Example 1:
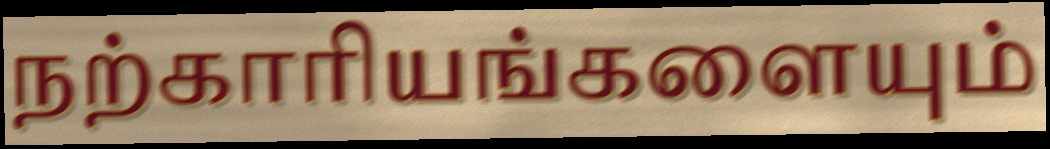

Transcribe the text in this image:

நற்காரியங்களையும்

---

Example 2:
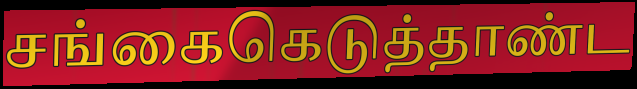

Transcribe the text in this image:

சங்கைகெடுத்தாண்ட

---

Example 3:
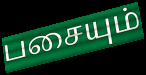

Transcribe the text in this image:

பசையும்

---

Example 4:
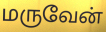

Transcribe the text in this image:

மருவேன்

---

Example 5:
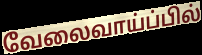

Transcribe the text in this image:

வேலைவாய்ப்பில்